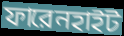
ফারেনহাইট